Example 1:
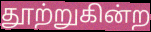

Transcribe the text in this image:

தூற்றுகின்ற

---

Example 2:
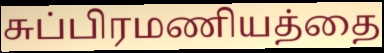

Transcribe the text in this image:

சுப்பிரமணியத்தை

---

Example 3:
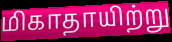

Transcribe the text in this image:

மிகாதாயிற்று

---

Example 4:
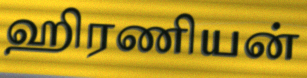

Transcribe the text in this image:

ஹிரணியன்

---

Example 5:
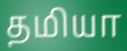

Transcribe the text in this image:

தமியா